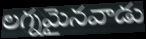
లగ్నమైనవాడు